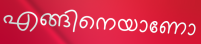
എങ്ങിനെയാണോ